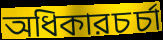
অধিকারচর্চা